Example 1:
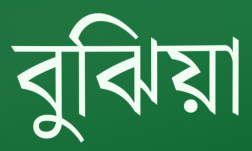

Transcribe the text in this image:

বুঝিয়া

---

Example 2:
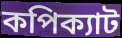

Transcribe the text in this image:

কপিক্যাট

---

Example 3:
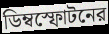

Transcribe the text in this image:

ডিম্বস্ফোটনের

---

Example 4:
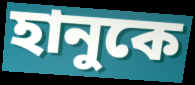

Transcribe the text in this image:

হানুকে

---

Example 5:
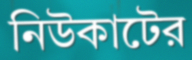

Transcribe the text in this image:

নিউকাটের